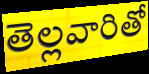
తెల్లవారితో